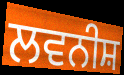
ਲਵਨੀਸ਼